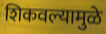
शिकवल्यामुळे